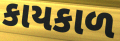
કાયકાળ